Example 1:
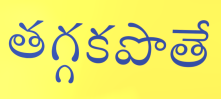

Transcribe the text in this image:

తగ్గకపొతే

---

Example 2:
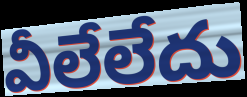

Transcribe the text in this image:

వీలేలేదు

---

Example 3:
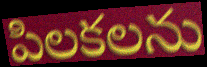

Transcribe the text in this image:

పిలకలను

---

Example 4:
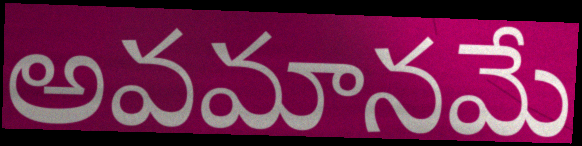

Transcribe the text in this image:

అవమానమే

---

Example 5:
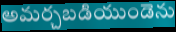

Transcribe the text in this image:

అమర్చబడియుండెను